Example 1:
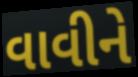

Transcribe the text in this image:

વાવીને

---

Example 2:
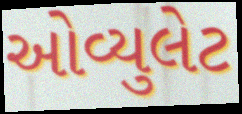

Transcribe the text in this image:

ઓવ્યુલેટ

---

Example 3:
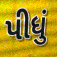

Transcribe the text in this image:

પીધું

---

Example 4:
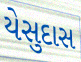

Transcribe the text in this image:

યેસુદાસ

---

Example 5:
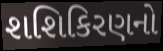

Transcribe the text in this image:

શશિકિરણનો